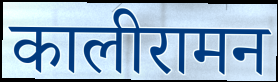
कालीरामन